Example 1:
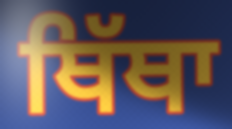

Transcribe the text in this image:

ਥਿੱਥਾ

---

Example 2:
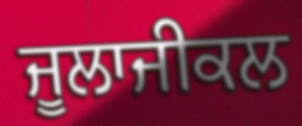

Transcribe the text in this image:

ਜੂਲਾਜੀਕਲ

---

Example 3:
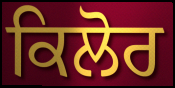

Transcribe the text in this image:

ਕਿਲੋਰ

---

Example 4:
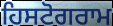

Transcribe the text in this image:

ਹਿਸਟੋਗਰਾਮ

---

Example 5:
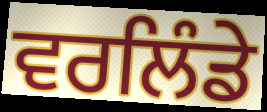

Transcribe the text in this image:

ਵਰਲਿੰਡੇ